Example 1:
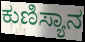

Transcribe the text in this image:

ಕುಣಿಸ್ಯಾನ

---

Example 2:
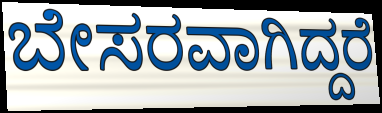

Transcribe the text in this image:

ಬೇಸರವಾಗಿದ್ದರೆ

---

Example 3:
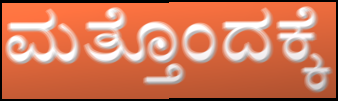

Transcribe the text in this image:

ಮತ್ತೊಂದಕ್ಕೆ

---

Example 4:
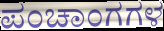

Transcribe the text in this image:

ಪಂಚಾಂಗಗಳ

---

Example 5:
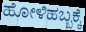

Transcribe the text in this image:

ಹೋಳಿಹಬ್ಬಕ್ಕೆ